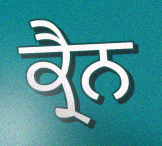
ਕ੍ਰੈਨ